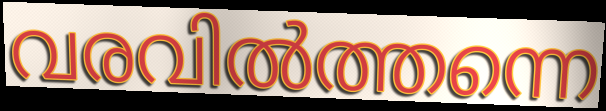
വരവിൽത്തന്നെ